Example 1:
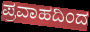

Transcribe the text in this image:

ಪ್ರವಾಹದಿಂದ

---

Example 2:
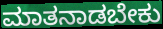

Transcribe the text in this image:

ಮಾತನಾಡಬೇಕು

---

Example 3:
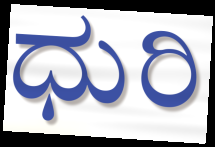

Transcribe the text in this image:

ಧುರಿ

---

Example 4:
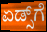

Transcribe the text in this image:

ಏಡ್ಸ್‌ಗೆ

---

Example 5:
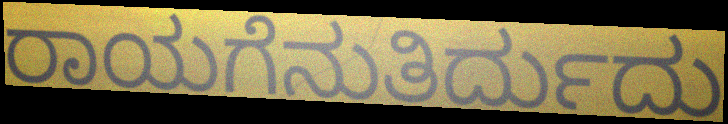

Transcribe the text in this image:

ರಾಯಗೆನುತಿರ್ದುದು